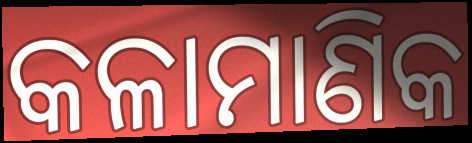
କଳାମାଣିକ